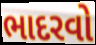
ભાદરવો